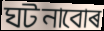
ঘটনাবোৰ